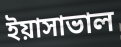
ইয়াসাভাল